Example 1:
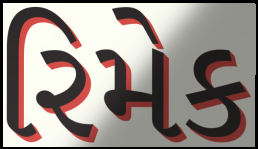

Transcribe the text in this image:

રિમેક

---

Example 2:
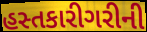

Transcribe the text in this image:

હસ્તકારીગરીની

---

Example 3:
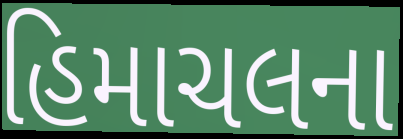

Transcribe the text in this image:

હિમાચલના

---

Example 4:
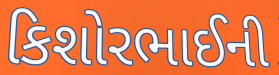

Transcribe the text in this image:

કિશોરભાઈની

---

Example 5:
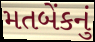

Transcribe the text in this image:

મતબેંકનું